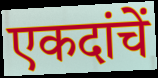
एकदांचें